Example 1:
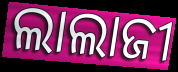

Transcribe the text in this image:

ଲାଲାଜୀ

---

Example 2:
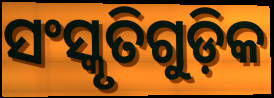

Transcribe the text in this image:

ସଂସ୍କୃତିଗୁଡ଼ିକ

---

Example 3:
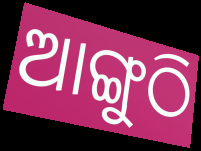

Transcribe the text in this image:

ଆଙ୍ଗୁଠି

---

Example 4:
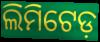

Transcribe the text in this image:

ଲିମିଟେଡ଼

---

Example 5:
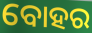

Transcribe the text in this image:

ବୋହର